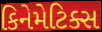
કિનેમેટિક્સ